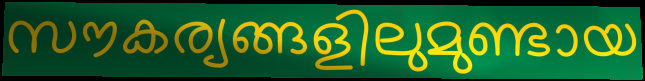
സൗകര്യങ്ങളിലുമുണ്ടായ